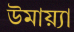
উমায়্যা